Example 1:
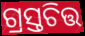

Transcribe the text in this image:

ଗ୍ରସ୍ତଚିତ୍ତ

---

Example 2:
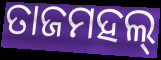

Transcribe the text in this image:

ତାଜମହଲ୍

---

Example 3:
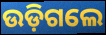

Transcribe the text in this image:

ଉଡ଼ିଗଲେ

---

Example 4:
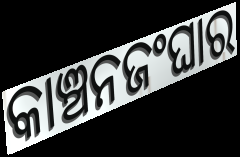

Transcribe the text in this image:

କାଞ୍ଚନଜଂଘାର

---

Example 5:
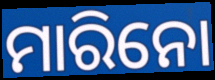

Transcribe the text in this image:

ମାରିନୋ